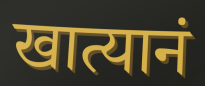
खात्यानं